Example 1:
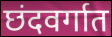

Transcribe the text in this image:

छंदवर्गात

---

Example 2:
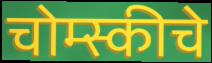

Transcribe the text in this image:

चोम्स्कीचे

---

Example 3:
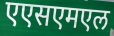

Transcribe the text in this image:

एएसएमएल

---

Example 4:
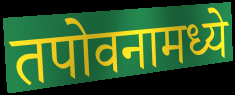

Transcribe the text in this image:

तपोवनामध्ये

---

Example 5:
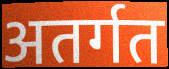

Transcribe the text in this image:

अतर्गत